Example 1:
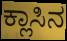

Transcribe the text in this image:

ಕ್ಲಾಸಿನ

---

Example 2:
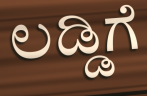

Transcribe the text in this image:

ಲಡ್ಡಿಗೆ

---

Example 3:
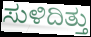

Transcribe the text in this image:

ಸುಳಿದಿತ್ತು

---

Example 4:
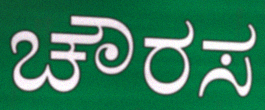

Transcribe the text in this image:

ಚೌರಸ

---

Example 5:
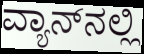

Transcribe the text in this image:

ವ್ಯಾನ್‌ನಲ್ಲಿ